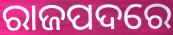
ରାଜପଦରେ